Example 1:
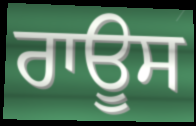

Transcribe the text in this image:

ਰਾਊਸ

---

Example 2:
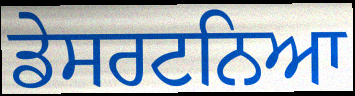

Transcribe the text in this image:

ਡੇਸਰਟਨਿਆ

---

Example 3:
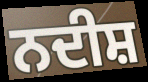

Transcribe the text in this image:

ਨਦੀਸ਼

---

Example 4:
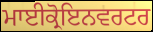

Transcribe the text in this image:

ਮਾਈਕ੍ਰੋਇਨਵਰਟਰ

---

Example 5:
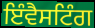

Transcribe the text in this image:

ਇੰਵੈਸਟਿੰਗ